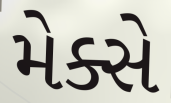
મેક્સે